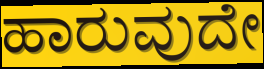
ಹಾರುವುದೇ